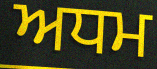
ਅਧਮ